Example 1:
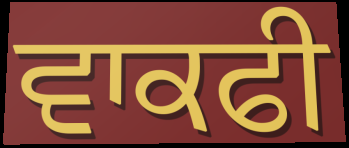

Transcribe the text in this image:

ਵਾਕਫੀ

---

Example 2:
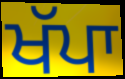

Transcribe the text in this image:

ਖੱਪਾ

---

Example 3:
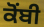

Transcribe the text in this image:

ਕੋਂਬੀ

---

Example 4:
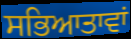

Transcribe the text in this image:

ਸਭਿਆਤਾਵਾਂ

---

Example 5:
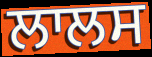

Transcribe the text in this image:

ਲਾਲਸ